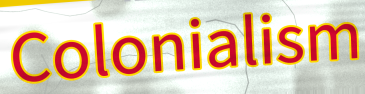
Colonialism